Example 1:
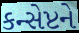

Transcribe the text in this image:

કન્સેપ્ટને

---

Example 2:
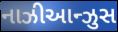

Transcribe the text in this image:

નાઝીઆન્ઝુસ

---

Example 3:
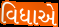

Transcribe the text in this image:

વિધાએ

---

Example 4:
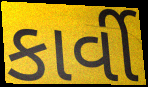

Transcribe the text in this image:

કાર્વી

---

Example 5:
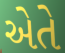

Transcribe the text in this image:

એતે